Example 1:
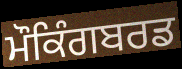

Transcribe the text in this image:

ਮੌਕਿੰਗਬਰਡ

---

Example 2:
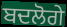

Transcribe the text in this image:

ਬਦਲੋਗੇ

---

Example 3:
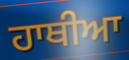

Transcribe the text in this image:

ਹਾਥੀਆ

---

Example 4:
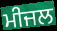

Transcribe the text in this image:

ਮੀਜਲ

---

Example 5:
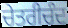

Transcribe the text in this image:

ਚੇਤਰੀਚੰਦ